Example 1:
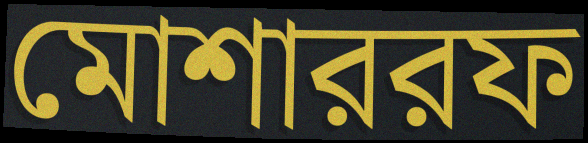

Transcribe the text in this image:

মোশাররফ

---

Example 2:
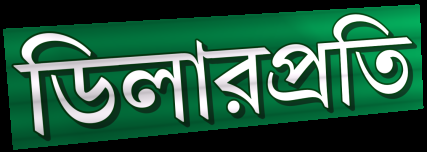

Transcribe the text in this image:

ডিলারপ্রতি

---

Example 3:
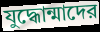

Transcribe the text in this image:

যুদ্ধোন্মাদের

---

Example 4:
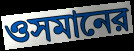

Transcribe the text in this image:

ওসমানের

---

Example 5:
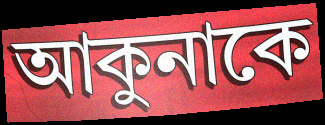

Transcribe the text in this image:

আকুনাকে